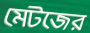
মেটজের